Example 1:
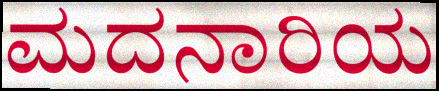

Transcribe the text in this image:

ಮದನಾರಿಯ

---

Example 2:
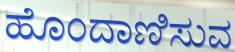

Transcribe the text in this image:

ಹೊಂದಾಣಿಸುವ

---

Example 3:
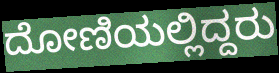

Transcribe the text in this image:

ದೋಣಿಯಲ್ಲಿದ್ದರು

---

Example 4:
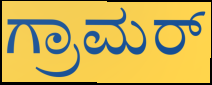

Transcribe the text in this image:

ಗ್ರಾಮರ್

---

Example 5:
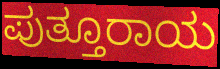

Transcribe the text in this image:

ಪುತ್ತೂರಾಯ